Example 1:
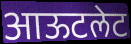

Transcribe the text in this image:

आऊटलेट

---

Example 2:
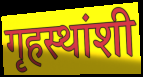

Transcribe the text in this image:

गृहस्थांशी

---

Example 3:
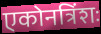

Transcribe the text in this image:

एकोनत्रिंशः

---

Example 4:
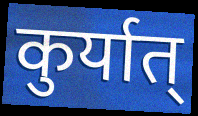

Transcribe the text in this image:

कुर्यात्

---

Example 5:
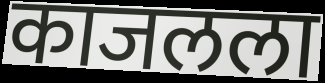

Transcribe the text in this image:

काजलला